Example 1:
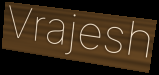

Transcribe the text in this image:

Vrajesh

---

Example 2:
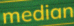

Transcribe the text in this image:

median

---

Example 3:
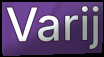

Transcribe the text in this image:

Varij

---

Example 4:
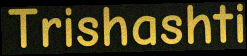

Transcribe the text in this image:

Trishashti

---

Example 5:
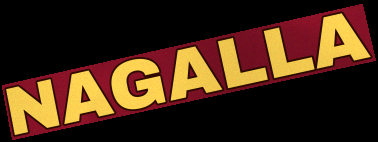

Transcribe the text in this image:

NAGALLA